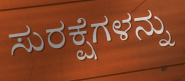
ಸುರಕ್ಷೆಗಳನ್ನು